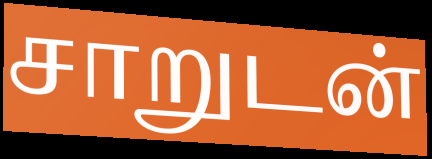
சாறுடன்